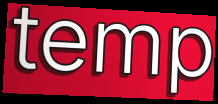
temp